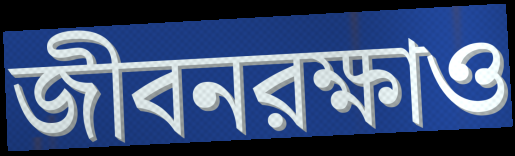
জীবনরক্ষাও